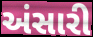
અંસારી